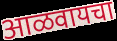
आळवायचा